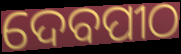
ଦେବପୀଠ